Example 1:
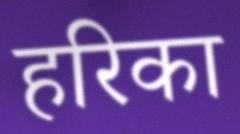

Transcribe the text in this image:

हरिका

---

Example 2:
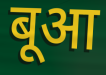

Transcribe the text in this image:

बूआ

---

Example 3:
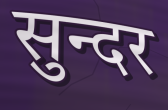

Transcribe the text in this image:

सुन्दर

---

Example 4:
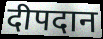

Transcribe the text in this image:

दीपदान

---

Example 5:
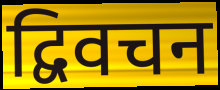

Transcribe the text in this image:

द्विवचन